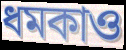
ধমকাও